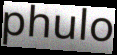
phulo